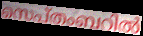
സെപ്തംബറിൽ